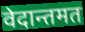
वेदान्तमत